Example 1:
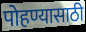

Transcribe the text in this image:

पोहण्यासाठी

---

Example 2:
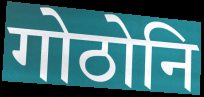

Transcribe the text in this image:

गोठोनि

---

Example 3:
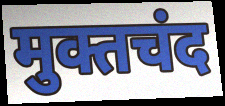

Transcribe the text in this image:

मुक्तचंद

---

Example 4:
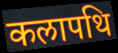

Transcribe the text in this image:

कलापथि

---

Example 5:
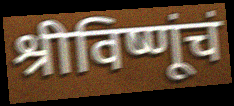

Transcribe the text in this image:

श्रीविष्णूंचं